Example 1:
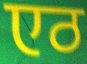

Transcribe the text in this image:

एठ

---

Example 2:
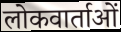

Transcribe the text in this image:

लोकवार्ताओं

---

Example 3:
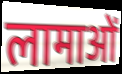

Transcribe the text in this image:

लामाओं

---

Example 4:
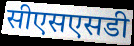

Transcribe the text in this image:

सीएसएसडी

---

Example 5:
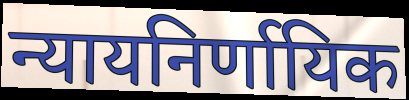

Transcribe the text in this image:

न्यायनिर्णायिक